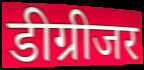
डीग्रीजर